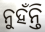
ନୁହଁନ୍ତି